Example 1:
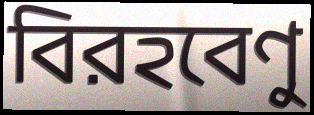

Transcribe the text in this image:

বিরহবেণু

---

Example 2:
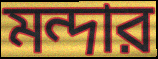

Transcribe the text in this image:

মন্দার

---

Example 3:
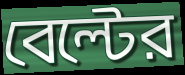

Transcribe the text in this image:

বেল্টের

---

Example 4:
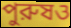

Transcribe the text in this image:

পুরুষও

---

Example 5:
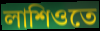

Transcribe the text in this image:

লাশিওতে